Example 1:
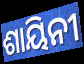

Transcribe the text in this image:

ଶାୟିନୀ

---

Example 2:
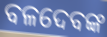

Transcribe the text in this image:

ବଳଦେବଙ୍କ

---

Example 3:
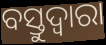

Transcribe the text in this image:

ବସ୍ତୁଦ୍ଵାରା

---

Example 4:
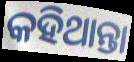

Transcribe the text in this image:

କହିଥାନ୍ତା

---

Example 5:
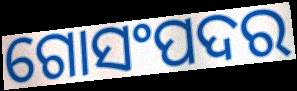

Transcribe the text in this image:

ଗୋସଂପଦର